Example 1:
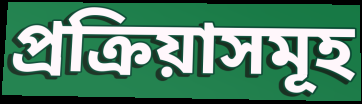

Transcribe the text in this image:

প্ৰক্ৰিয়াসমূহ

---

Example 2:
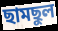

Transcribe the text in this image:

ছামছুল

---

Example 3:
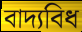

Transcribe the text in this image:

বাদ্যবিধ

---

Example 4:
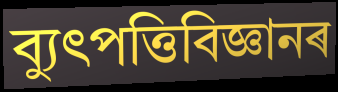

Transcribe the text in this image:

ব্যুৎপত্তিবিজ্ঞানৰ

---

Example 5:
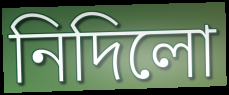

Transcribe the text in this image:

নিদিলো